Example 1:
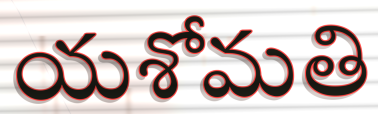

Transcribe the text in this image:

యశోమతి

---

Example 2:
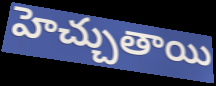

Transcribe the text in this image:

హెచ్చుతాయి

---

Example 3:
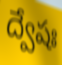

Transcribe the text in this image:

ద్వేషః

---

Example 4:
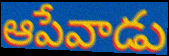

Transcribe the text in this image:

ఆపేవాడు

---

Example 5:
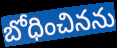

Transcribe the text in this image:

బోధించినను